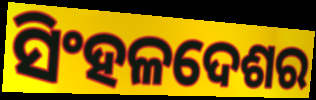
ସିଂହଳଦେଶର